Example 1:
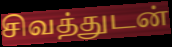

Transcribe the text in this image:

சிவத்துடன்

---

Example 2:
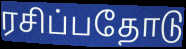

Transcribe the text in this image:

ரசிப்பதோடு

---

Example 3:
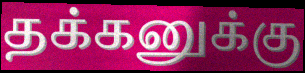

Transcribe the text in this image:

தக்கனுக்கு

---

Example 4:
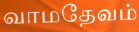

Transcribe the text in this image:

வாமதேவம்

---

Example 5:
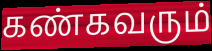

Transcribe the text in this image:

கண்கவரும்